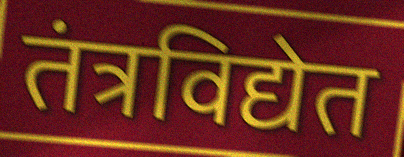
तंत्रविद्येत